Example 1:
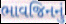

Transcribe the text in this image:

ભાવજિનનું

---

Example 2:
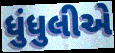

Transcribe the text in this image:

ધુંધુલીએ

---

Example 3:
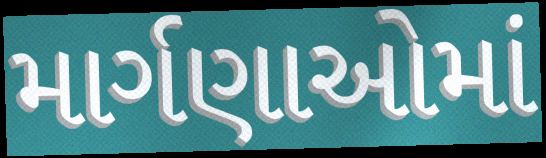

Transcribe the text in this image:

માર્ગણાઓમાં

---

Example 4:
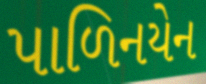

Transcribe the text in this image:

પાળિનયેન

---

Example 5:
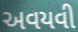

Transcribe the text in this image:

અવયવી